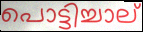
പൊട്ടിച്ചാല്